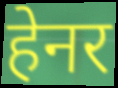
हेनर